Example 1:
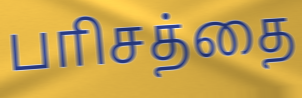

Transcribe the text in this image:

பரிசத்தை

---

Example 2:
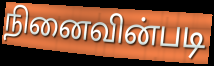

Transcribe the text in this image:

நினைவின்படி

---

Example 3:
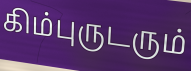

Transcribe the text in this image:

கிம்புருடரும்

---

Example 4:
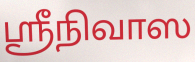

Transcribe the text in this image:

ஸ்ரீநிவாஸ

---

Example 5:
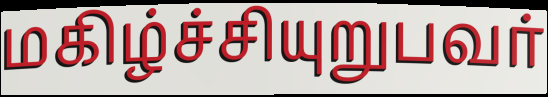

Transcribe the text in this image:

மகிழ்ச்சியுறுபவர்